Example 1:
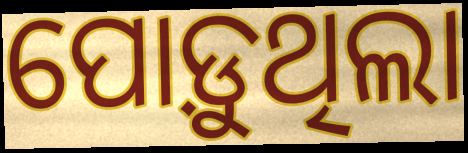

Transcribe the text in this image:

ପୋଡ଼ୁଥିଲା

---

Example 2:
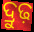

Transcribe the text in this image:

ଦ୍ରୁଢ଼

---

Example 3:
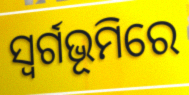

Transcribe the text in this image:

ସ୍ଵର୍ଗଭୂମିରେ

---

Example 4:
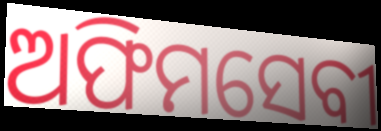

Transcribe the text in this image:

ଅଫିମସେବୀ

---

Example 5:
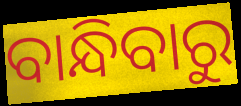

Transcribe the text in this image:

ବାନ୍ଧିବାରୁ